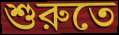
শুরুতে